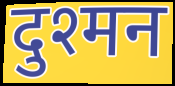
दुश्मन